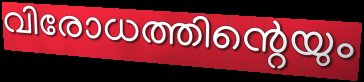
വിരോധത്തിന്റെയും